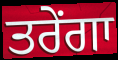
ਤਰੇਂਗਾ